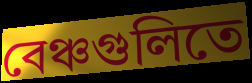
বেঞ্চগুলিতে